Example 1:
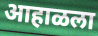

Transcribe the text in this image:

आहाळला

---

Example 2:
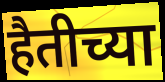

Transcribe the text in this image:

हैतीच्या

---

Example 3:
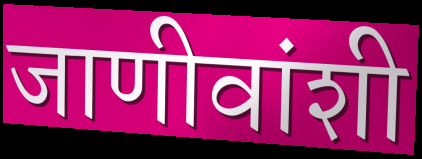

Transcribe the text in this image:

जाणीवांशी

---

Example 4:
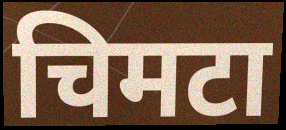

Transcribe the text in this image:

चिमटा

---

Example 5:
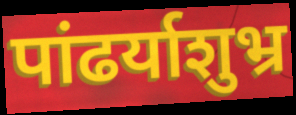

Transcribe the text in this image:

पांढर्याशुभ्र